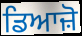
ਡਿਆਜ਼ੋ